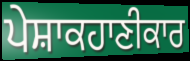
ਪੇਸ਼ਾਕਹਾਣੀਕਾਰ